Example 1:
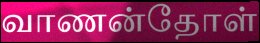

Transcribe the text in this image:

வாணன்தோள்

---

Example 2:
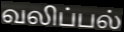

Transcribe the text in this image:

வலிப்பல்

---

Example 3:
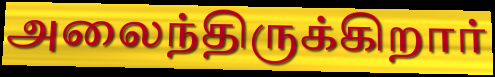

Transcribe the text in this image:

அலைந்திருக்கிறார்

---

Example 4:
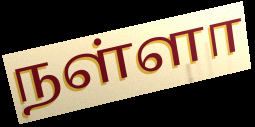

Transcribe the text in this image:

நள்ளா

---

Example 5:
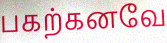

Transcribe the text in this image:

பகற்கனவே